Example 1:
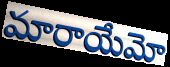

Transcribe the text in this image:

మారాయేమో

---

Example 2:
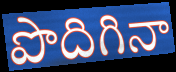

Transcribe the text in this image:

పొదిగినా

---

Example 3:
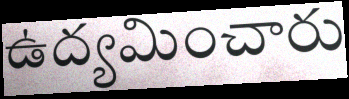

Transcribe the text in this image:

ఉద్యమించారు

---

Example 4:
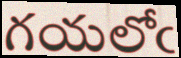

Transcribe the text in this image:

గయలోఁ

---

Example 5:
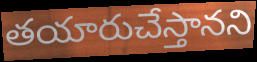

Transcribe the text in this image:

తయారుచేస్తానని